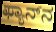
ಫ್ಯಾನ್‌ನ